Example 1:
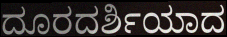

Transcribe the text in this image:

ದೂರದರ್ಶಿಯಾದ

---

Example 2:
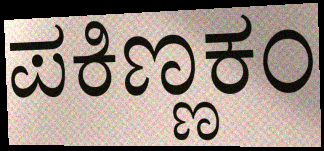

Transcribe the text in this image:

ಪಕಿಣ್ಣಕಂ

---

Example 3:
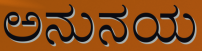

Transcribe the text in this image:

ಅನುನಯ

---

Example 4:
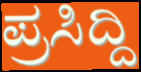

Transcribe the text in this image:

ಪ್ರಸಿದ್ದಿ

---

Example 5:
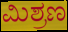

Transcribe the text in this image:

ಮಿಶ್ರಣ